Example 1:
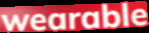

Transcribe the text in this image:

wearable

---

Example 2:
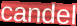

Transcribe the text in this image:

candel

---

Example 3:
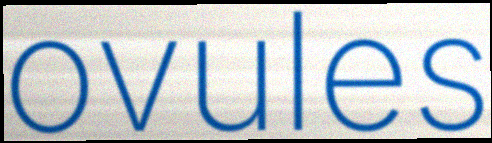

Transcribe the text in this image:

ovules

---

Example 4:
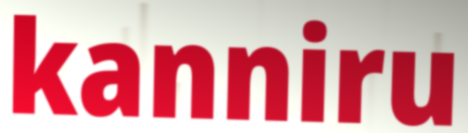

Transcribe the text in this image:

kanniru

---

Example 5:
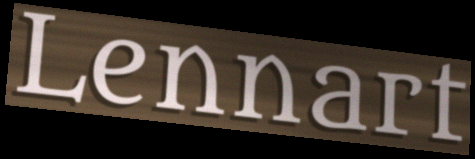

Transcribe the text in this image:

Lennart